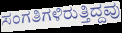
ಸಂಗತಿಗಳಿರುತ್ತಿದ್ದವು